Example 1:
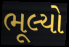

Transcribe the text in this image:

ભૂલ્‍યો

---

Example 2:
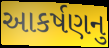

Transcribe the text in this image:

આકર્ષણનુ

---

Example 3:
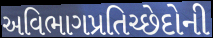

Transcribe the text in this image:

અવિભાગપ્રતિચ્છેદોની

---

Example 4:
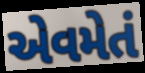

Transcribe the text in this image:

એવમેતં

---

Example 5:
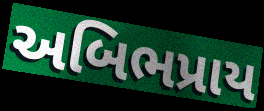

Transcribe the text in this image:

અબિભપ્રાય